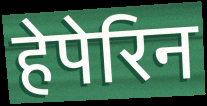
हेपेरिन